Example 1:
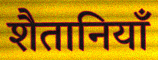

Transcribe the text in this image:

शैतानियाँ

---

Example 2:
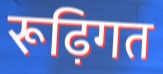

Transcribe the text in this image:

रूढ़िगत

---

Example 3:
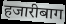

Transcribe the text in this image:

हजारीबाग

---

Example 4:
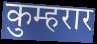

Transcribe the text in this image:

कुम्हरार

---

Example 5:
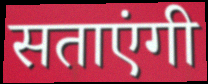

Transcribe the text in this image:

सताएंगी